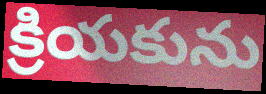
క్రియకును